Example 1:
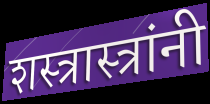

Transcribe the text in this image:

शस्त्रास्त्रांनी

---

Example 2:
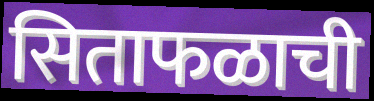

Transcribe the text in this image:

सिताफळाची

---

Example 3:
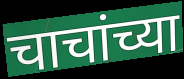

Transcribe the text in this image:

चाचांच्या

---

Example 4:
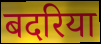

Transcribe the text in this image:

बदरिया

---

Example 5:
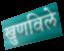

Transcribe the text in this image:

खुणविले